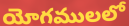
యోగములలో